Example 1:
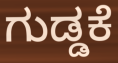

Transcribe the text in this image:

ಗುಡ್ಡಕೆ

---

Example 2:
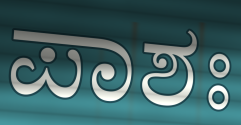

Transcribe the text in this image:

ಪಾಶಃ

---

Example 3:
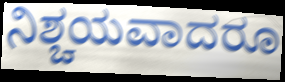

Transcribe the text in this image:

ನಿಶ್ಚಯವಾದರೂ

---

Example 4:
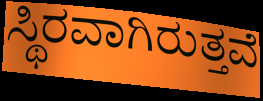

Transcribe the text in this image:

ಸ್ಥಿರವಾಗಿರುತ್ತವೆ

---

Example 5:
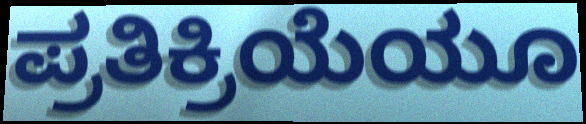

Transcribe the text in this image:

ಪ್ರತಿಕ್ರಿಯೆಯೂ